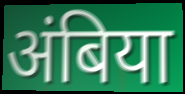
अंबिया